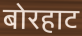
बोरहाट